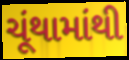
ચૂંથામાંથી